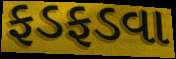
ફડફડવા